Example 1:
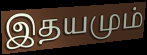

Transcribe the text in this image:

இதயமும்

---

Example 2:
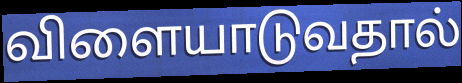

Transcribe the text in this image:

விளையாடுவதால்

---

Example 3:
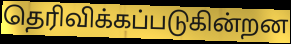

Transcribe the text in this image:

தெரிவிக்கப்படுகின்றன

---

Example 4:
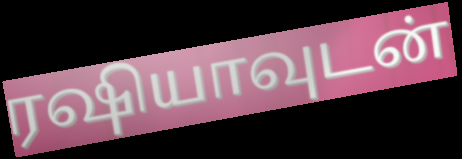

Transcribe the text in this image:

ரஷியாவுடன்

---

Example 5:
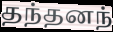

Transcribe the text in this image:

தந்தனந்